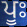
ਪੂਃ